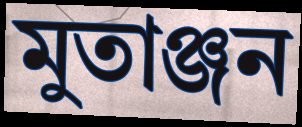
মুতাঞ্জন